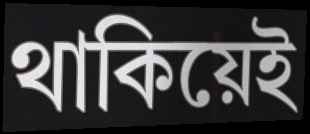
থাকিয়েই